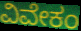
ವಿವೇಕಂ